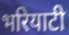
भरियाटी